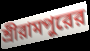
শ্রীরামপুরের